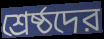
শ্রেষ্ঠদের